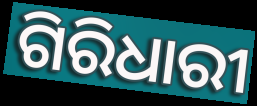
ଗିରିଧାରୀ